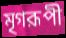
মৃগরূপী